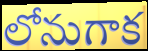
లోనుగాక